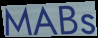
MABs